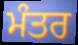
ਮੰਤਰ